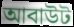
আবাউট